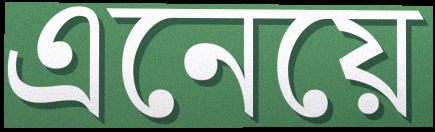
এনেয়ে